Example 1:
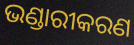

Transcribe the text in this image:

ଭଣ୍ଡାରୀକରଣ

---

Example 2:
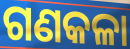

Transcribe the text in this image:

ଗଣକଳା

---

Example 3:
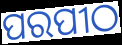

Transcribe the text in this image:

ପରପୀଠ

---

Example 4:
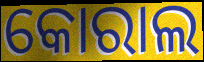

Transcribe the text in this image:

କୋରାଲ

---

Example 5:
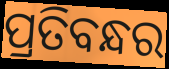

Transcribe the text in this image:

ପ୍ରତିବନ୍ଧର